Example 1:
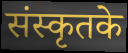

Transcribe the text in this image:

संस्कृतके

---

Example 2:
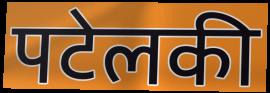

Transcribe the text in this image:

पटेलकी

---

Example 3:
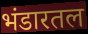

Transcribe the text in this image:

भंडारतल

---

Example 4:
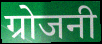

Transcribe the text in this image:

ग्रोजनी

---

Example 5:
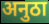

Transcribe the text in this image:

अनुठा